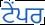
ਟੇਂਪਰ